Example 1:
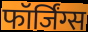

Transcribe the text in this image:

फॉर्जिंग्स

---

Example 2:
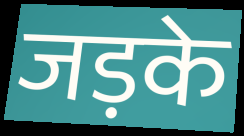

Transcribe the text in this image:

जड़के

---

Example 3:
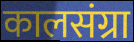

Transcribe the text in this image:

कालसंग्रा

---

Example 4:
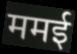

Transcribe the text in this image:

ममई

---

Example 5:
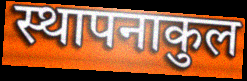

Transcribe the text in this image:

स्थापनाकुल